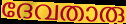
ദേവതാരു